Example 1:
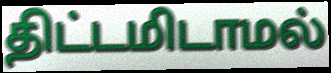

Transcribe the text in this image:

திட்டமிடாமல்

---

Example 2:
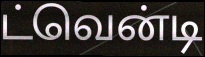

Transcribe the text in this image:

ட்வென்டி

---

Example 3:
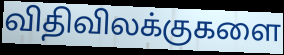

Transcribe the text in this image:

விதிவிலக்குகளை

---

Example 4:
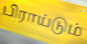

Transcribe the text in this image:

பிராய்டும்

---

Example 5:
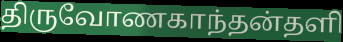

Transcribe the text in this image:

திருவோணகாந்தன்தளி